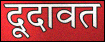
दूदावत